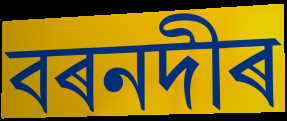
বৰনদীৰ